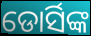
ଡୋର୍ସିଙ୍କ